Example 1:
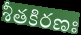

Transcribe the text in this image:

శీతకిరణః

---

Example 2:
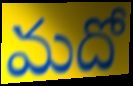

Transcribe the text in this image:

మదో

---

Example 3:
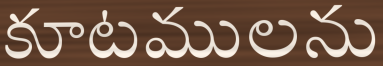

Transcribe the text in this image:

కూటములను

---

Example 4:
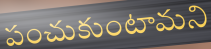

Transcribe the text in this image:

పంచుకుంటామని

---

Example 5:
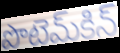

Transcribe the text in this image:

పొటెమ్‌కిన్